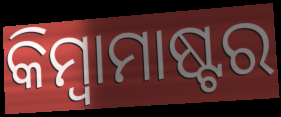
କିମ୍ୱାମାଷ୍ଟର